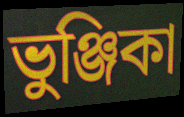
ভুঞ্জিকা